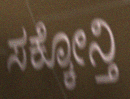
ಸಕ್ಕೋನ್ತಿ